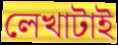
লেখাটাই